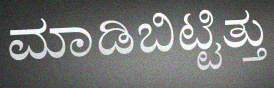
ಮಾಡಿಬಿಟ್ಟಿತ್ತು